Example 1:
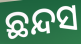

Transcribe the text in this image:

ଛନ୍ଦସ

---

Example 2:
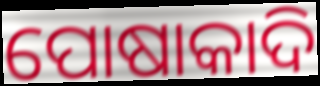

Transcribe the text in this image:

ପୋଷାକାଦି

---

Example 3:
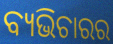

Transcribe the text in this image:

ବ୍ୟଭିଚାରର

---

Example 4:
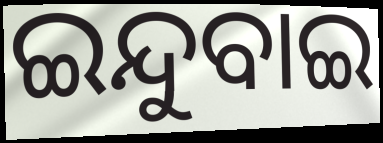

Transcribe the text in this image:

ଇନ୍ଦୁବାଇ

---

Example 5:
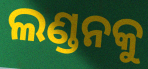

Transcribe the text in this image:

ଲଣ୍ଡନକୁ